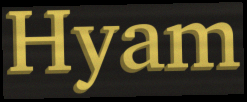
Hyam